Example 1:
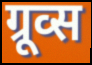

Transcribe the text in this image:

ग्रूव्स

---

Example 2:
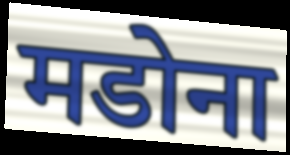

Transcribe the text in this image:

मडोना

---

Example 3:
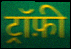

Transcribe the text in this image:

ट्रॉफ़ी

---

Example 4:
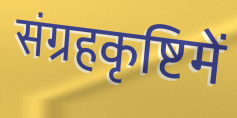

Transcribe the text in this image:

संग्रहकृष्टिमें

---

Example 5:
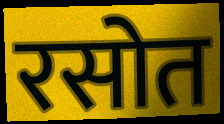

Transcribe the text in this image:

रसोत